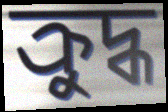
ক্ৰুদ্ধ